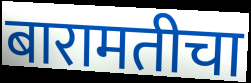
बारामतीचा